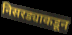
निसरड्याकडून